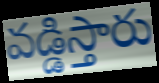
వడ్డిస్తారు